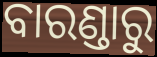
ବାରଣ୍ଡାରୁ